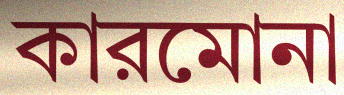
কারমোনা